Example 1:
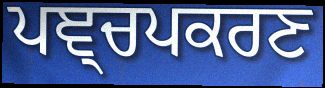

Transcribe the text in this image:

ਪਞ੍ਚਪਕਰਣ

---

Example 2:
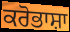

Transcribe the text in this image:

ਕਰੋਭਾਸ਼ਾ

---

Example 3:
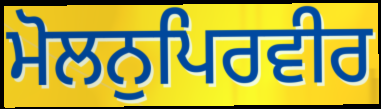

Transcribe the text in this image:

ਮੋਲਨੁਪਿਰਵੀਰ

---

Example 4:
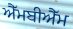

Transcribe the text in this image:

ਐੱਮਬੀਐੱਮ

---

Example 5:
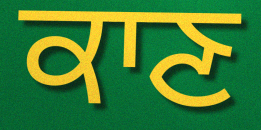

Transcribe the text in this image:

ਕਾਣ